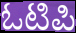
ಓಟಿಪಿ